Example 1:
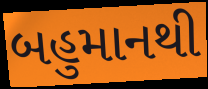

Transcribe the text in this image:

બહુમાનથી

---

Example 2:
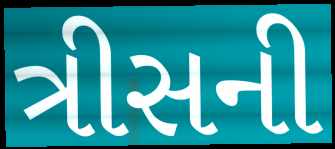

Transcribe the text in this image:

ત્રીસની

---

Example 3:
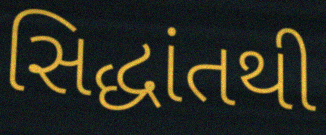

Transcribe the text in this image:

સિદ્ધાંતથી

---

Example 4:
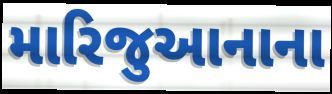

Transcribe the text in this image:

મારિજુઆનાના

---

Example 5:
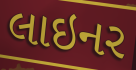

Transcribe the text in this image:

લાઇનર